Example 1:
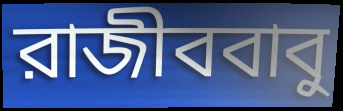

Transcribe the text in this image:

রাজীববাবু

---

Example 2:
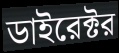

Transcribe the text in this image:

ডাইরেক্টর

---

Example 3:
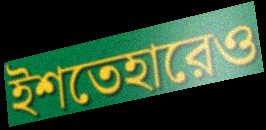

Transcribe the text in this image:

ইশতেহারেও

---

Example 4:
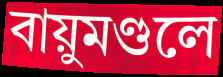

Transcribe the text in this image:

বায়ুমণ্ডলে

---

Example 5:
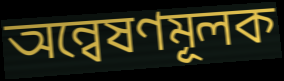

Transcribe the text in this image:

অন্বেষণমূলক